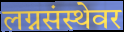
लग्नसंस्थेवर